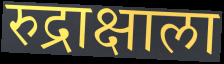
रुद्राक्षाला